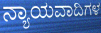
ನ್ಯಾಯವಾದಿಗಳ